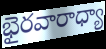
భైరవారాధ్యా